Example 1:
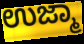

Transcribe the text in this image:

ಉಜ್ಮಾ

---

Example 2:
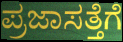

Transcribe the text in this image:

ಪ್ರಜಾಸತ್ತೆಗೆ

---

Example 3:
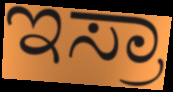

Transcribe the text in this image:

ಇಸ್ರಾ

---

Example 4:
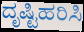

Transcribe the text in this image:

ದೃಷ್ಟಿಹರಿಸಿ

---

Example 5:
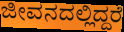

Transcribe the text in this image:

ಜೀವನದಲ್ಲಿದ್ದರೆ